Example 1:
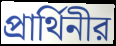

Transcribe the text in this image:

প্রার্থিনীর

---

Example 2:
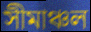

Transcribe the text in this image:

সীমাঞ্চল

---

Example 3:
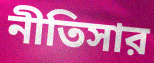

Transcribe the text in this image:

নীতিসার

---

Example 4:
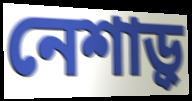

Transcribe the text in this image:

নেশাড়ু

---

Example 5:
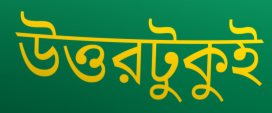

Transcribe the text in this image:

উত্তরটুকুই